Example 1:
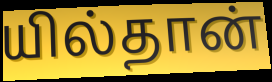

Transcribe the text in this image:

யில்தான்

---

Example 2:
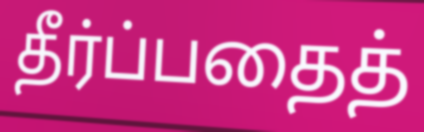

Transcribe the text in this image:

தீர்ப்பதைத்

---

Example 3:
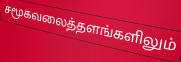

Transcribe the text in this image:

சமூகவலைத்தளங்களிலும்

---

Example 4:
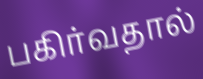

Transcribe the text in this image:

பகிர்வதால்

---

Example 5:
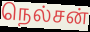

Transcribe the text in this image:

நெல்சன்